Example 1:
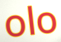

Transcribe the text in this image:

olo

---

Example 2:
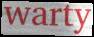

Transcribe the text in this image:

warty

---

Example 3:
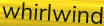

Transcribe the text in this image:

whirlwind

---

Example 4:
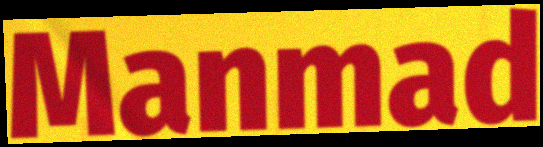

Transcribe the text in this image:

Manmad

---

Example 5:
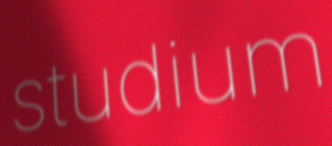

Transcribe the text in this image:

studium